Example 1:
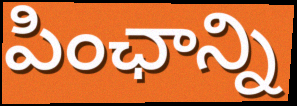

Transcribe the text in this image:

పింఛాన్ని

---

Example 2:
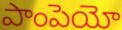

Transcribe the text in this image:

పాంపెయో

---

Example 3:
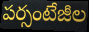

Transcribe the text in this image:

పర్సంటేజీల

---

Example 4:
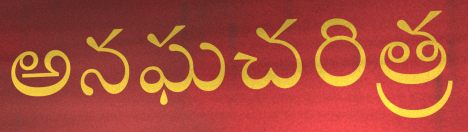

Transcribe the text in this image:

అనఘచరిత్ర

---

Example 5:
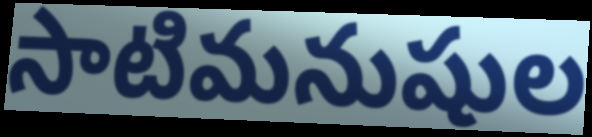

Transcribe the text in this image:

సాటిమనుషుల